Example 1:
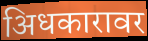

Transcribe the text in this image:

अिधकारावर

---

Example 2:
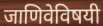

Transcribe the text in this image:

जाणिवेविषयी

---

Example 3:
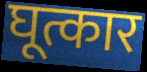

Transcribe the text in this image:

घूत्कार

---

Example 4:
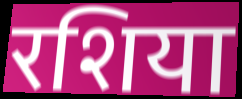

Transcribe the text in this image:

रशिया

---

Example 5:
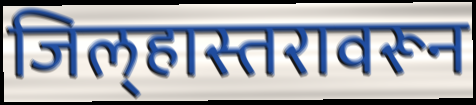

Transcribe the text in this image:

जिल्हास्तरावरून